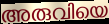
അരുവിയെ